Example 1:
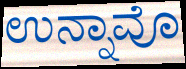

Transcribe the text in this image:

ಉನ್ನಾವೊ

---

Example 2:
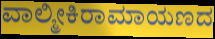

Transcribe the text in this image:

ವಾಲ್ಮೀಕಿರಾಮಾಯಣದ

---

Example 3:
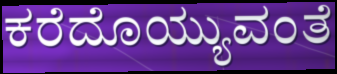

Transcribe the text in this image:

ಕರೆದೊಯ್ಯುವಂತೆ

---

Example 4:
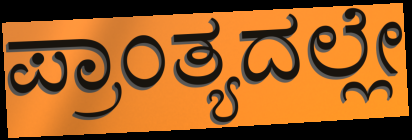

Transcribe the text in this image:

ಪ್ರಾಂತ್ಯದಲ್ಲೇ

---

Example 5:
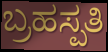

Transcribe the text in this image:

ಬ್ರಹಸ್ಪತಿ